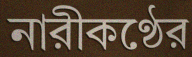
নারীকণ্ঠের